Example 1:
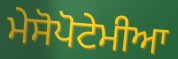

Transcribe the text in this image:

ਮੇਸੋਪੋਟੇਮੀਆ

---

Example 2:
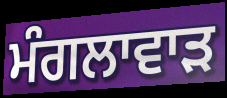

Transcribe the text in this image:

ਮੰਗਲਾਵਾੜ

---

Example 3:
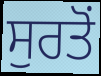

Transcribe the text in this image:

ਸੁਰਤੋਂ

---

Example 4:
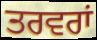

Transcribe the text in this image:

ਤਰਵਰਾਂ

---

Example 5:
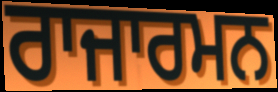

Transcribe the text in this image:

ਰਾਜਾਰਮਨ